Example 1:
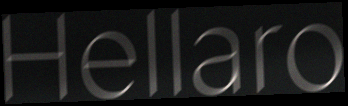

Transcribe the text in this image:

Hellaro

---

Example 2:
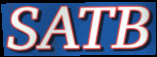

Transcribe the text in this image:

SATB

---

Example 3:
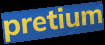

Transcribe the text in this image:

pretium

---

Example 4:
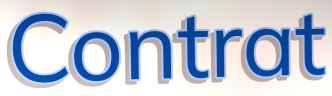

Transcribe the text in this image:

Contrat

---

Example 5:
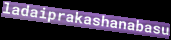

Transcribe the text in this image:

ladaiprakashanabasu